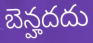
బెన్హదదు